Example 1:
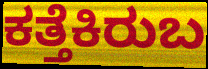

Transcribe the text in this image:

ಕತ್ತೆಕಿರುಬ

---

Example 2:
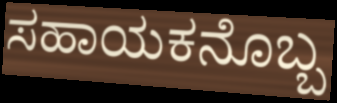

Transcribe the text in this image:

ಸಹಾಯಕನೊಬ್ಬ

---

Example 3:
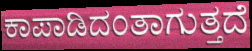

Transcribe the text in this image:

ಕಾಪಾಡಿದಂತಾಗುತ್ತದೆ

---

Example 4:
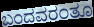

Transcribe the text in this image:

ಬಂದವರಂತೂ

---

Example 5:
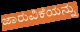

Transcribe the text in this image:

ಜಾರುವಿಕೆಯನ್ನು